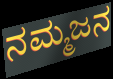
ನಮ್ಮಜನ